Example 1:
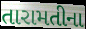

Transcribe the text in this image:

તારામતીના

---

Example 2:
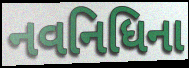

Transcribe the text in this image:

નવનિધિના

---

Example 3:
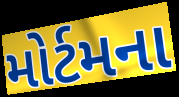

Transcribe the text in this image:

મોર્ટમના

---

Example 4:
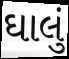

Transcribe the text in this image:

ઘાલું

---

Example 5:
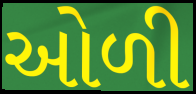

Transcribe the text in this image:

ઓળી